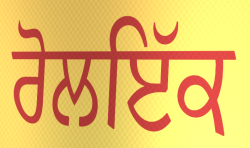
ਰੋਲਇੱਕ